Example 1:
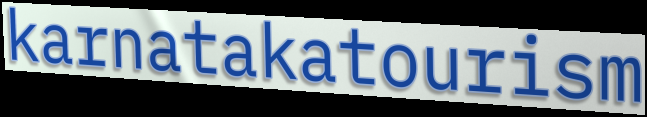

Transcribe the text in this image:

karnatakatourism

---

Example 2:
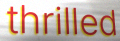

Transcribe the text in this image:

thrilled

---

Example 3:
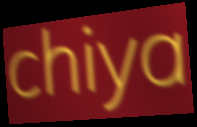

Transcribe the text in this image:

chiya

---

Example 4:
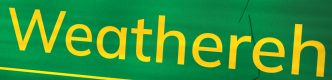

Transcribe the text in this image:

Weathereh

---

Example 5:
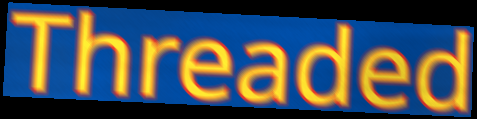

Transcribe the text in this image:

Threaded